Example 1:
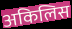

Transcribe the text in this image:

अकिलिस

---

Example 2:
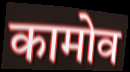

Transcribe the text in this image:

कामोव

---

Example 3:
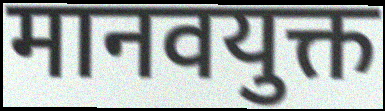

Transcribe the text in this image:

मानवयुक्त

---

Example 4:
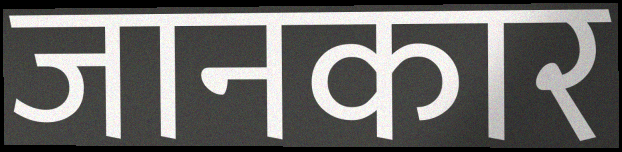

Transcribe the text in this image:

जानकार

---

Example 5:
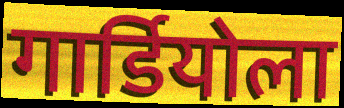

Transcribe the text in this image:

गार्डियोला